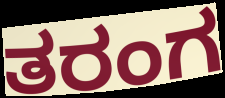
ತರಂಗ